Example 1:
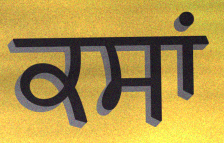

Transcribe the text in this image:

ਕਸਾਂ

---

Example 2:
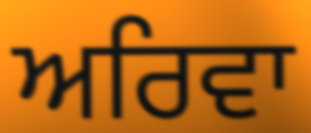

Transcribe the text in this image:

ਅਰਿਵਾ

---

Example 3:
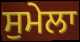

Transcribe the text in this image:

ਸੁਮੇਲਾ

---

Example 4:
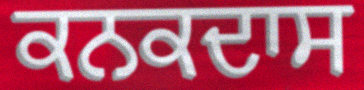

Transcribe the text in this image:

ਕਨਕਦਾਸ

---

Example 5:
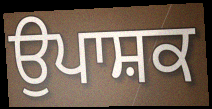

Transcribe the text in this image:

ਉਪਾਸ਼ਕ